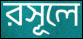
রসূলে